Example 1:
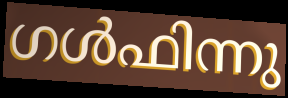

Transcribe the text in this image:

ഗൾഫിന്നു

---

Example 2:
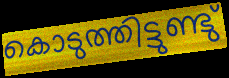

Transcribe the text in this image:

കൊടുത്തിട്ടുണ്ടു്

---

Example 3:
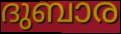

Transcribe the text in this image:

ദുബാര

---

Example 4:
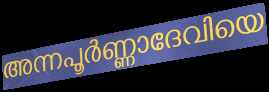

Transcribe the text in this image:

അന്നപൂർണ്ണാദേവിയെ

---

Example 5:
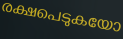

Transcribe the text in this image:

രക്ഷപെടുകയോ